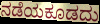
ನಡೆಯಕೂಡದು